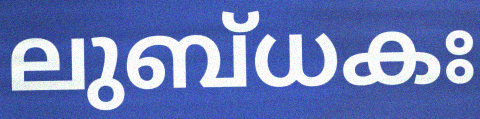
ലുബ്ധകഃ